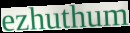
ezhuthum